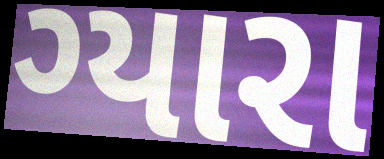
ગ્યારા